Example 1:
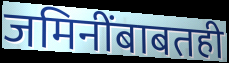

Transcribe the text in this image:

जमिनींबाबतही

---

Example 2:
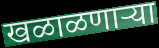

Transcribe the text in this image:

खळाळणाऱ्या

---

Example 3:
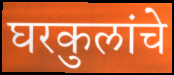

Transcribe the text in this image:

घरकुलांचे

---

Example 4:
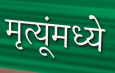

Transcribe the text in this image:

मृत्यूंमध्ये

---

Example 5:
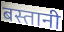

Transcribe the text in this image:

बस्तानी